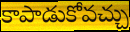
కాపాడుకోవచ్చు